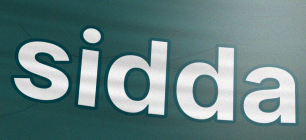
sidda